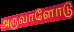
அருவாளோடு